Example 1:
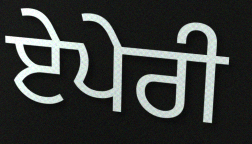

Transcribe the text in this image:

ਏਪੇਰੀ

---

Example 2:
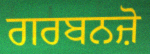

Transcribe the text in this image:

ਗਰਬਨਜ਼ੋ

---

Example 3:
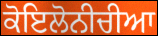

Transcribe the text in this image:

ਕੋਇਲੋਨੀਚੀਆ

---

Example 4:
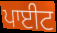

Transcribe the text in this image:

ਪਾਈਟ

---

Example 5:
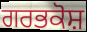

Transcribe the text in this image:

ਗਰਭਕੋਸ਼